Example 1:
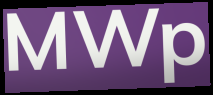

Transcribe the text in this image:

MWp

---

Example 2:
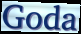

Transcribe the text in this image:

Goda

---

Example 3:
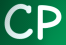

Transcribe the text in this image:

CP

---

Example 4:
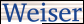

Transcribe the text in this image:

Weiser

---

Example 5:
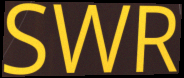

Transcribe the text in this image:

SWR